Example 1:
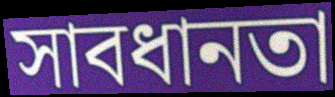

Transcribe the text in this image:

সাবধানতা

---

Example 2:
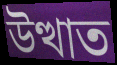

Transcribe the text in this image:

উত্থাত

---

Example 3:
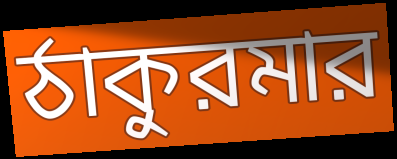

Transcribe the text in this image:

ঠাকুরমার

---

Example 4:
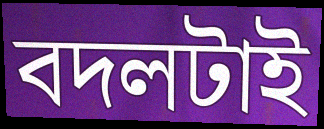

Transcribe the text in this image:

বদলটাই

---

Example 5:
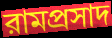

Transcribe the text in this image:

রামপ্রসাদ